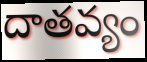
దాతవ్యం